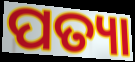
ପତ୍ୟା